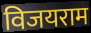
विजयराम